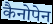
कैनोपेन